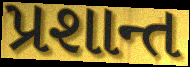
પ્રશાન્ત